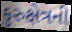
કુરુક્ષેત્રની